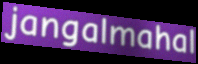
jangalmahal